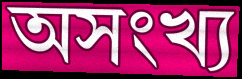
অসংখ্য